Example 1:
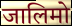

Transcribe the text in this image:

जालिमो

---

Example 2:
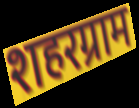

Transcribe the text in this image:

शहरग्राम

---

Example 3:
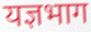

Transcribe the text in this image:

यज्ञभाग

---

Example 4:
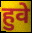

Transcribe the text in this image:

हुवे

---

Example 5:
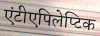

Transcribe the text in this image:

एंटीएपिलेप्टिक